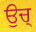
ਉਚ੍